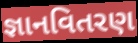
જ્ઞાનવિતરણ